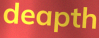
deapth